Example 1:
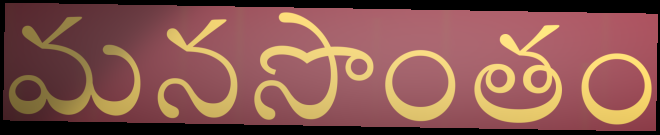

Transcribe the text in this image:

మనసొంతం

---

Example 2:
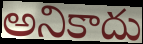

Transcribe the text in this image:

అనికాదు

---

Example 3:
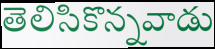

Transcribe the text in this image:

తెలిసికొన్నవాడు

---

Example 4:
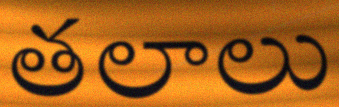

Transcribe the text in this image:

తలాలు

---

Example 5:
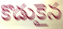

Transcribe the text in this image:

కొడుకైన